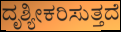
ದೃಶ್ಯೀಕರಿಸುತ್ತದೆ